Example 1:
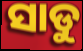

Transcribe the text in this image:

ସାଡୁ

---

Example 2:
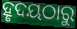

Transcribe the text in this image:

ହୃଦୟଠାରୁ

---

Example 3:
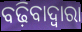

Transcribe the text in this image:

ବଢ଼ିବାଦ୍ୱାରା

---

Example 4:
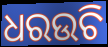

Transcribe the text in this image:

ଧରଉଚି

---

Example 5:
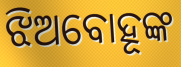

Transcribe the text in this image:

ଝିଅବୋହୂଙ୍କ